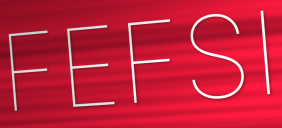
FEFSI